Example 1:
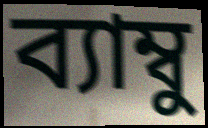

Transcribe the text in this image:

ব্যাম্বু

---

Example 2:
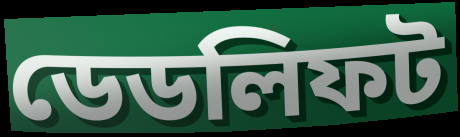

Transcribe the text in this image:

ডেডলিফট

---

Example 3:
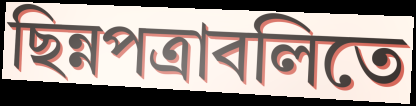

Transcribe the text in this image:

ছিন্নপত্রাবলিতে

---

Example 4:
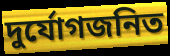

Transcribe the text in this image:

দুর্যোগজনিত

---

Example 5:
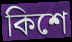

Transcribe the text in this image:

কিশে